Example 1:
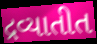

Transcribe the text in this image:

દ્રવ્યાતીત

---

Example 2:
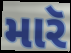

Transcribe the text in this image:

મારૅ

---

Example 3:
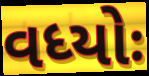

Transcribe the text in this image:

વધ્યોઃ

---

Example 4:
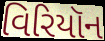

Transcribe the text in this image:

વિરિયૉન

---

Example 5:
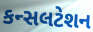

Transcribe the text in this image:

કન્સલટેશન